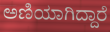
ಅಣಿಯಾಗಿದ್ದಾರೆ